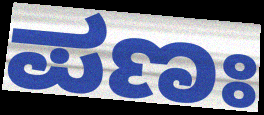
ಪಣಃ